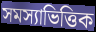
সমস্যাভিত্তিক